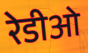
रेडीओ